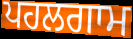
ਪਹਲਗਾਮ